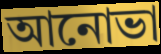
আনোভা